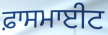
ਫ਼ਾਸਮਾਈਟ